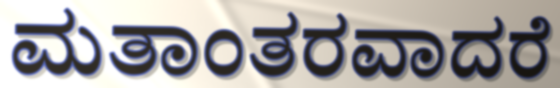
ಮತಾಂತರವಾದರೆ